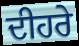
ਦੀਹਰੇ